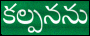
కల్పనను